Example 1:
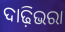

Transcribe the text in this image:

ଦାଢ଼ିଭରା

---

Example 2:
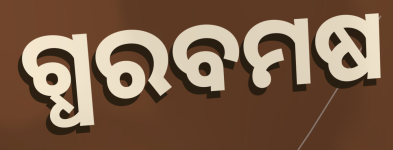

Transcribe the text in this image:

ଗ୍ଧରବମଷ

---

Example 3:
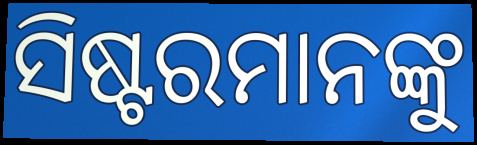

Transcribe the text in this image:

ସିଷ୍ଟରମାନଙ୍କୁ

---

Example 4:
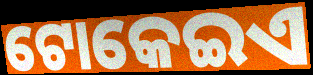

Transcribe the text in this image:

ଟୋକେଇଏ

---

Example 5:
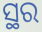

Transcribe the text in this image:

ସ୍ଥର